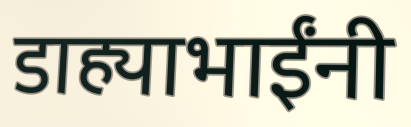
डाह्याभाईंनी